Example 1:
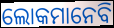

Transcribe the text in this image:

ଲୋକମାନେବି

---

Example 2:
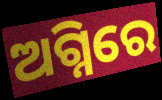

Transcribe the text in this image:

ଅଗ୍ନିରେ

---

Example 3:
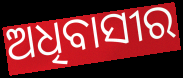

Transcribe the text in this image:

ଅଧିବାସୀର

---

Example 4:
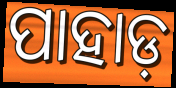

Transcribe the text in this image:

ପାହାଡ଼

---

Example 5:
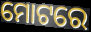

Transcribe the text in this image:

ମୋଟରେ